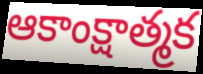
ఆకాంక్షాత్మక